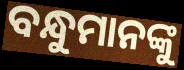
ବନ୍ଧୁମାନଙ୍କୁ